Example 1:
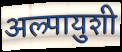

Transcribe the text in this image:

अल्पायुशी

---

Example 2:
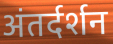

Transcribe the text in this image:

अंतर्दर्शन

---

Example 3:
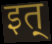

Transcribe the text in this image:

इत्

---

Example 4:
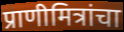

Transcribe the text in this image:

प्राणीमित्रांचा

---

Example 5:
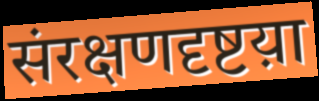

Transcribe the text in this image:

संरक्षणदृष्टय़ा